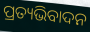
ପ୍ରତ୍ୟଭିବାଦନ